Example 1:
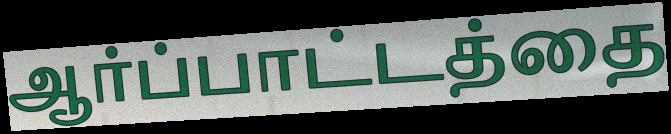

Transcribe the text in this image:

ஆர்ப்பாட்டத்தை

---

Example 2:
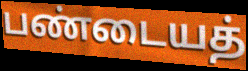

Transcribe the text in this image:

பண்டையத்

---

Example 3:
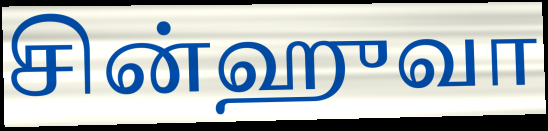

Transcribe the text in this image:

சின்ஹுவா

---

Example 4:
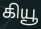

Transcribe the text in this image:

கியூ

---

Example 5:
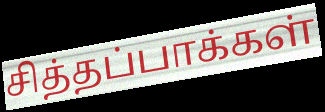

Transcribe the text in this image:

சித்தப்பாக்கள்